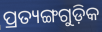
ପ୍ରତ୍ୟଙ୍ଗଗୁଡ଼ିକ